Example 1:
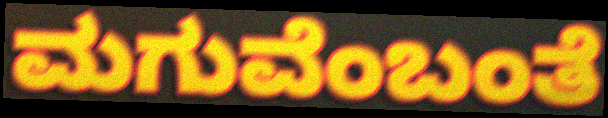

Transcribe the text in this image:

ಮಗುವೆಂಬಂತೆ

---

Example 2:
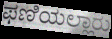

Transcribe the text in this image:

ಫಣಿಯಲ್ಲಾರು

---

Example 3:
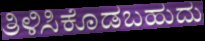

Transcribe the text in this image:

ತಿಳಿಸಿಕೊಡಬಹುದು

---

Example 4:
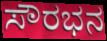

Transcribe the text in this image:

ಸೌರಭನ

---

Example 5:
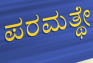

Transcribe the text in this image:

ಪರಮತ್ಥೇ